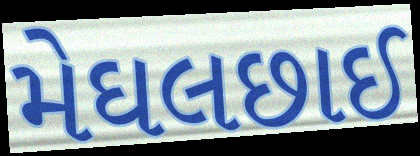
મેઘલછાઈ